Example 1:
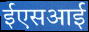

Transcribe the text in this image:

ईएसआई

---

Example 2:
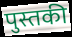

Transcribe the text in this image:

पुस्तकी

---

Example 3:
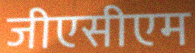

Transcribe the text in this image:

जीएसीएम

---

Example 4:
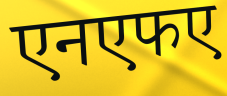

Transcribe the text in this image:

एनएफए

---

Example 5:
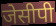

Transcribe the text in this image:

जेसीपी